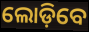
ଲୋଡ଼ିବେ